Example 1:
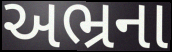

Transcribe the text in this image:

અભ્રના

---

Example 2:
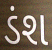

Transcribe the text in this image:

ડંશ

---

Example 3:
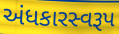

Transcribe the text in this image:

અંધકારસ્વરૂપ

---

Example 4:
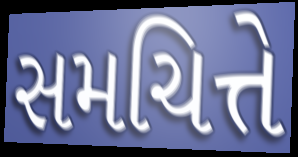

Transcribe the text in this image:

સમચિત્તે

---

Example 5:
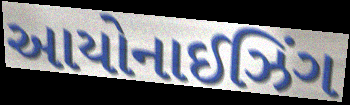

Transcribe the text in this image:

આયોનાઈઝિંગ